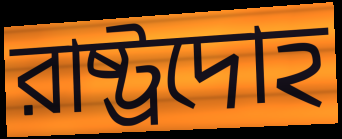
রাষ্ট্রদোহ